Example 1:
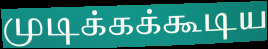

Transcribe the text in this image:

முடிக்கக்கூடிய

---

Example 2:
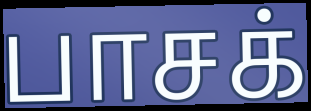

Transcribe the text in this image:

பாசக்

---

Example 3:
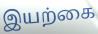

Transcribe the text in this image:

இயற்கை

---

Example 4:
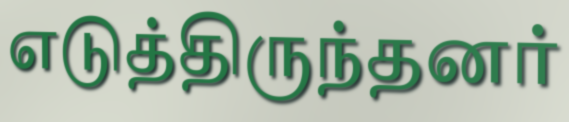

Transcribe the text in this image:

எடுத்திருந்தனர்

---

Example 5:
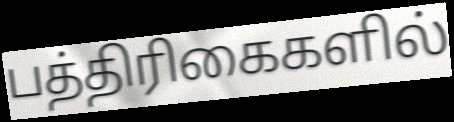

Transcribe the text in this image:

பத்திரிகைகளில்